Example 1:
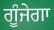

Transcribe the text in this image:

ਗੂੰਜੇਗਾ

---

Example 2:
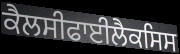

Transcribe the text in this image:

ਕੈਲਸੀਫਾਈਲੈਕਸਿਸ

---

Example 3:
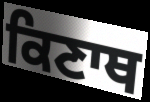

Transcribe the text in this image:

ਕਿਣਾਥ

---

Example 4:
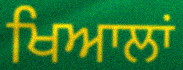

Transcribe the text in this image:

ਖਿਆਲਾਂ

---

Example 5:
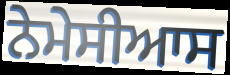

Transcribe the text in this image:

ਨੇਮੇਸੀਆਸ